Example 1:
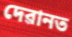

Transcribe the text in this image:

দেৱানত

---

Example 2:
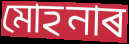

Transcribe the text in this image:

মোহনাৰ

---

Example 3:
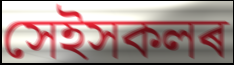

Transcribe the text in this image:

সেইসকলৰ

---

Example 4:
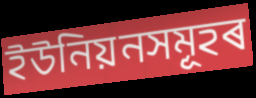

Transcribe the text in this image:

ইউনিয়নসমূহৰ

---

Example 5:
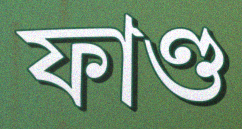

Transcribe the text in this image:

ফাণ্ড